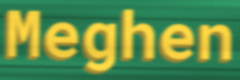
Meghen